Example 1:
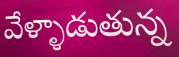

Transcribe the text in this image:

వేళ్ళాడుతున్న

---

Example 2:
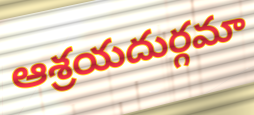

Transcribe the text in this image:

ఆశ్రయదుర్గమా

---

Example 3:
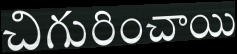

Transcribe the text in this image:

చిగురించాయి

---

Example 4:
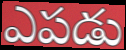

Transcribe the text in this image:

ఎపడు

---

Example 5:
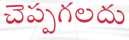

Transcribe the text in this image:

చెప్పగలదు